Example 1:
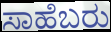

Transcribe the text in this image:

ಸಾಹೆಬರು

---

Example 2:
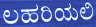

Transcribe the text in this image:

ಲಹರಿಯಲಿ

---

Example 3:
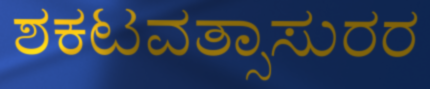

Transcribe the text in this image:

ಶಕಟವತ್ಸಾಸುರರ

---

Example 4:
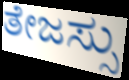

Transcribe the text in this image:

ತೇಜಸ್ಸು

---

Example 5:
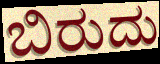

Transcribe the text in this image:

ಬಿರುದು